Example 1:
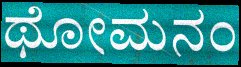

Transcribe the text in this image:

ಥೋಮನಂ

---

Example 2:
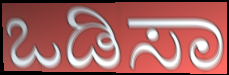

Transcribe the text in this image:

ಒಡಿಸಾ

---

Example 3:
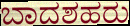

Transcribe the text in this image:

ಬಾದಶಹರು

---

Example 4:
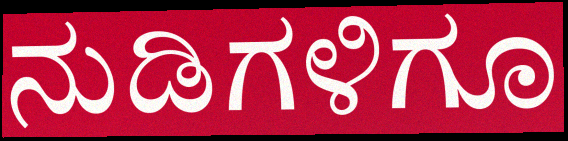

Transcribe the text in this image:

ನುಡಿಗಳಿಗೂ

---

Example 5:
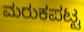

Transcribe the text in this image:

ಮರುಕಪಟ್ಟ